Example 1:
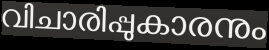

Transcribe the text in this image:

വിചാരിപ്പുകാരനും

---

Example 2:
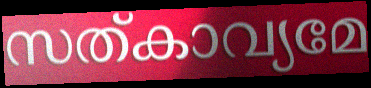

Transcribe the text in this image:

സത്കാവ്യമേ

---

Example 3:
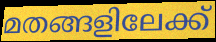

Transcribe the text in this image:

മതങ്ങളിലേക്ക്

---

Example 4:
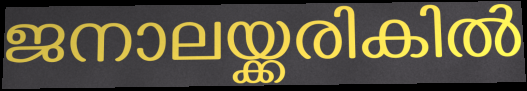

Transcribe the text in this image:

ജനാലയ്ക്കരികിൽ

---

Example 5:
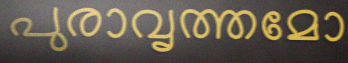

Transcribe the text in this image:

പുരാവൃത്തമോ